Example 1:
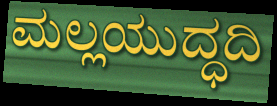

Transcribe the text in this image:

ಮಲ್ಲಯುದ್ಧದಿ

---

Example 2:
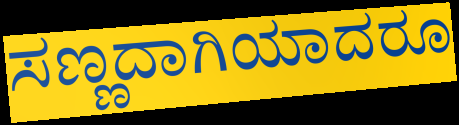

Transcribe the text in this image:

ಸಣ್ಣದಾಗಿಯಾದರೂ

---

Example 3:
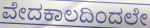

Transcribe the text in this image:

ವೇದಕಾಲದಿಂದಲೇ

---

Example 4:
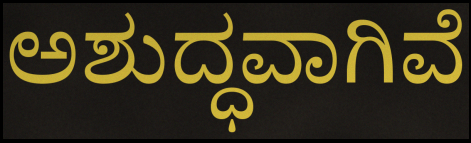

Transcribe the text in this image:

ಅಶುದ್ಧವಾಗಿವೆ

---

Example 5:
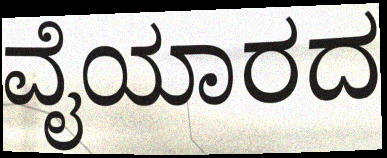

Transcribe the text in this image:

ವೈಯಾರದ